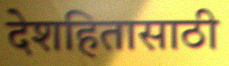
देशहितासाठी